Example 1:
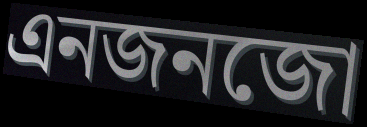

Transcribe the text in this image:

এনজনজো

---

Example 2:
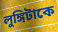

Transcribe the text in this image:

লুঙ্গিটাকে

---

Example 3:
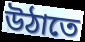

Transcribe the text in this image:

উঠাতে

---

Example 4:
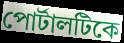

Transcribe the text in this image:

পোর্টালটিকে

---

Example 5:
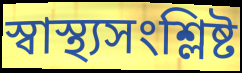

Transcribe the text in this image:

স্বাস্থ্যসংশ্লিষ্ট